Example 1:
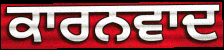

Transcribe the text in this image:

ਕਾਰਨਵਾਦ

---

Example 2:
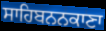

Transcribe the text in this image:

ਸਾਹਿਬਨਨਕਾਣਾ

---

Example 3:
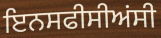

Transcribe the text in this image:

ਇਨਸਫੀਸੀਅਂਸੀ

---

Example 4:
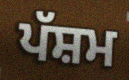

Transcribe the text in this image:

ਪੱਸ਼ਮ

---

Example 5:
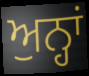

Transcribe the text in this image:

ਅੁਨ੍ਹਾਂ